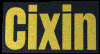
Cixin